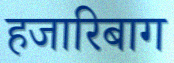
हजारिबाग